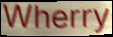
Wherry